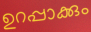
ഉറപ്പാക്കും